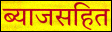
ब्याजसहित